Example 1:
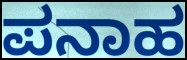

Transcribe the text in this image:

ಪನಾಹ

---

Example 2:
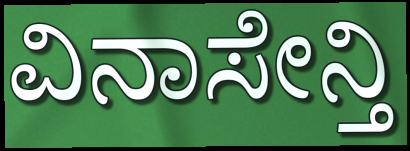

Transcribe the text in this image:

ವಿನಾಸೇನ್ತಿ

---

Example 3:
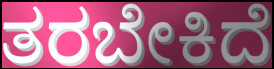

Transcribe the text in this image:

ತರಬೇಕಿದೆ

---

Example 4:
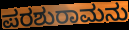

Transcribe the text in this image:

ಪರಶುರಾಮನು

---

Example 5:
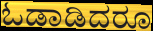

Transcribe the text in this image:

ಓಡಾಡಿದರೂ